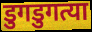
डुगडुगत्या